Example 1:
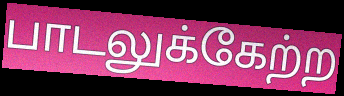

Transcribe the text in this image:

பாடலுக்கேற்ற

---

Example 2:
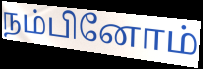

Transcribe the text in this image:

நம்பினோம்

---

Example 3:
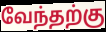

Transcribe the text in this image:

வேந்தற்கு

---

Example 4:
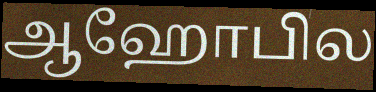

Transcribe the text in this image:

ஆஹோபில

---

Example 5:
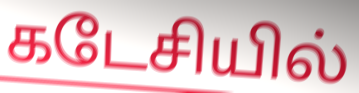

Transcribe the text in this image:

கடேசியில்